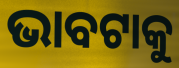
ଭାବଟାକୁ